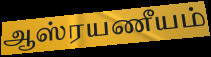
ஆஸ்ரயணீயம்